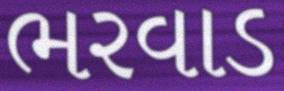
ભરવાડ